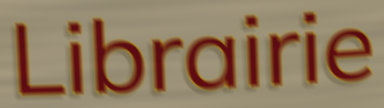
Librairie